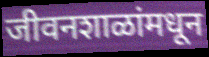
जीवनशाळांमधून